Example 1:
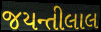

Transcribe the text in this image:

જયન્તીલાલ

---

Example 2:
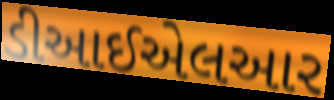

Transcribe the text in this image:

ડીઆઈએલઆર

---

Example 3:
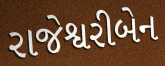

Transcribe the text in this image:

રાજેશ્વરીબેન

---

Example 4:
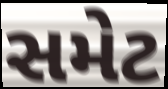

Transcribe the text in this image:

સમેટ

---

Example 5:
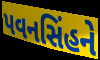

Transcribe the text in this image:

પવનસિંહને